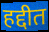
हद्दीत